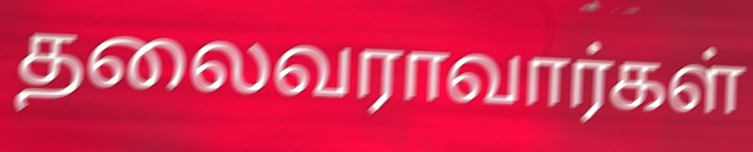
தலைவராவார்கள்